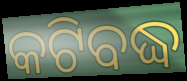
କଟିବଦ୍ଧ